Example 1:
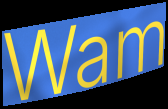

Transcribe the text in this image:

Wam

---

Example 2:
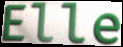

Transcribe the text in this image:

Elle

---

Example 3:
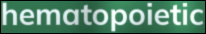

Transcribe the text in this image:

hematopoietic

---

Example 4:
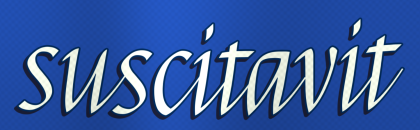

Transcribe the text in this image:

suscitavit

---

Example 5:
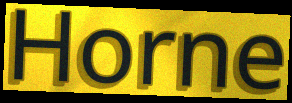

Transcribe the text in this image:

Horne